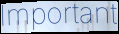
Important